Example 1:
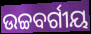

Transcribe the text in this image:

ଉଚ୍ଚବର୍ଗୀୟ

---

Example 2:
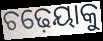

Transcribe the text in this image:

ଚଢ଼େୟାକୁ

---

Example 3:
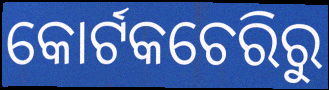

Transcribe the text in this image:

କୋର୍ଟକଚେରିରୁ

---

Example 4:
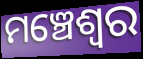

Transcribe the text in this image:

ମଞ୍ଚେଶ୍ଵର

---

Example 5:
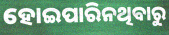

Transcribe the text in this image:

ହୋଇପାରିନଥିବାରୁ